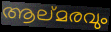
ആല്മരവും